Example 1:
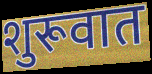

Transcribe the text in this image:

शुरूवात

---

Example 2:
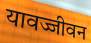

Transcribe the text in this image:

यावज्जीवन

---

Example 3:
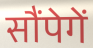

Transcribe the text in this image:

सौंपेगें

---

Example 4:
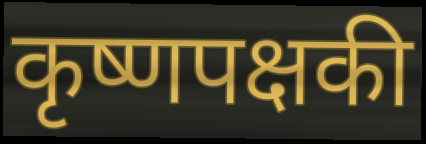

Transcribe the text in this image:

कृष्णपक्षकी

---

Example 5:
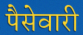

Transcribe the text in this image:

पैसेवारी